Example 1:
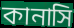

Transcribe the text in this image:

কানাসি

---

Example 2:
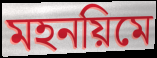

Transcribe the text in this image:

মহনয়িমে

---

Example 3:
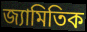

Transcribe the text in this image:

জ্যামিতিক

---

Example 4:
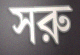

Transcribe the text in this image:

সরু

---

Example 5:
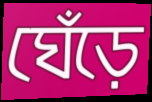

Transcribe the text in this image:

ঘেঁড়ে